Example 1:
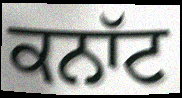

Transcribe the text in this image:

ਕਨਾੱਟ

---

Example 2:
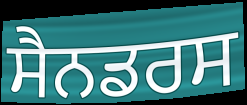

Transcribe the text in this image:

ਸੈਨਡਰਸ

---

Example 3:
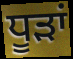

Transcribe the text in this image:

ਧੂਡ਼ਾਂ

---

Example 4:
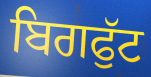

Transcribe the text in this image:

ਬਿਗਫੁੱਟ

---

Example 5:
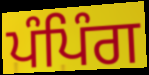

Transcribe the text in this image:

ਪੰਪਿੰਗ